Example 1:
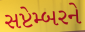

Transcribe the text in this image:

સપ્ટેમ્બરને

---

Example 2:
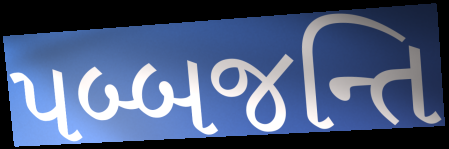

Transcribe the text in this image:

પબ્બજન્તિ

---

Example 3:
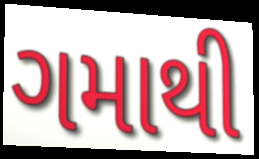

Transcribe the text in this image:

ગમાથી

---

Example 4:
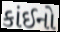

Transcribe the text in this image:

કાંઈનો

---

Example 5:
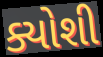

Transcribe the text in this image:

ક્યોશી